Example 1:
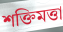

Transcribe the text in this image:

শক্তিমত্তা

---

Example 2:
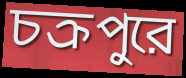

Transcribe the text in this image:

চক্রপুরে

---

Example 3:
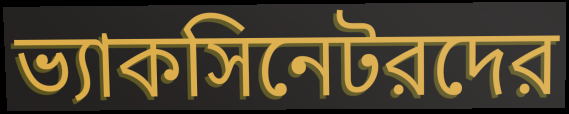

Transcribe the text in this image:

ভ্যাকসিনেটরদের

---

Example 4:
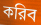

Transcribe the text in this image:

করিব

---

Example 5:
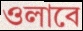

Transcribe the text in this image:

ওলাবে